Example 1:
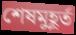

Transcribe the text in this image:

শেষমুহূর্ত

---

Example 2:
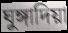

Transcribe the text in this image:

ঘুঙ্গাদিয়া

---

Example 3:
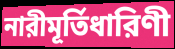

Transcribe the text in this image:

নারীমূর্তিধারিণী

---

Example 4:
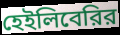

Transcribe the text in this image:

হেইলিবেরির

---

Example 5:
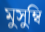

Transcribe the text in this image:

মুসুম্বি